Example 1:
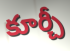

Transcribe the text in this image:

కూర్చీ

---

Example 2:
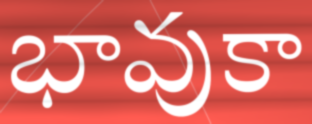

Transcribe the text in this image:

భావుకా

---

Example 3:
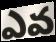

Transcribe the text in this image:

ఎవ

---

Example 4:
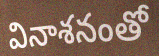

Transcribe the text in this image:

వినాశనంతో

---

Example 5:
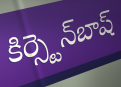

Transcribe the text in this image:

కిర్స్టెన్‌బాష్